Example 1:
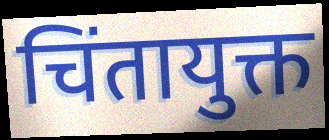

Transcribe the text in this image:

चिंतायुक्त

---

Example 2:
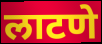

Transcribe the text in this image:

लाटणे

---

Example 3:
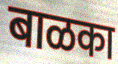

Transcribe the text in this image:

बाळका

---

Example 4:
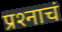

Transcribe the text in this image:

प्रश्नाचं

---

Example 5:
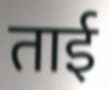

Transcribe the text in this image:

ताई